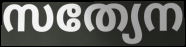
സത്യേന